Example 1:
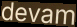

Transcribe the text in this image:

devam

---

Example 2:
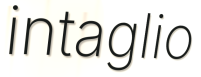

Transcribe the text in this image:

intaglio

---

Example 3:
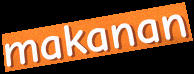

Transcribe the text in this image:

makanan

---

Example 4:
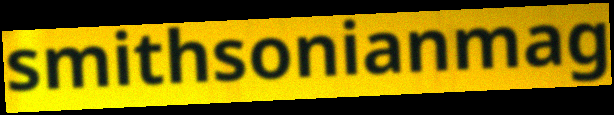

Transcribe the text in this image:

smithsonianmag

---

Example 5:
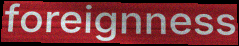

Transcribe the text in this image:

foreignness